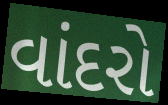
વાંદરો